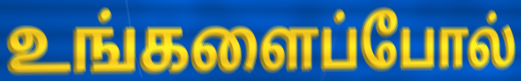
உங்களைப்போல்